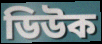
ডিউক